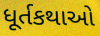
ધૂર્તકથાઓ